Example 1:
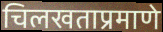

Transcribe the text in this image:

चिलखताप्रमाणे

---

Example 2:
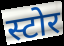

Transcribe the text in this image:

स्टोर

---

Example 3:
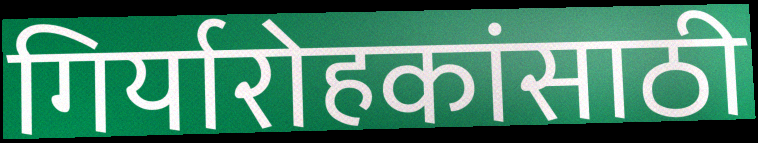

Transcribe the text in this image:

गिर्यारोहकांसाठी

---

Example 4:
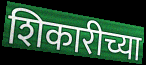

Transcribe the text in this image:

शिकारीच्या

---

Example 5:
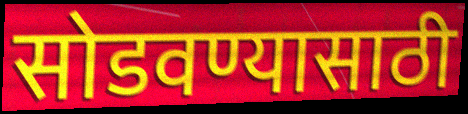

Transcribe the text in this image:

सोडवण्यासाठी